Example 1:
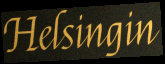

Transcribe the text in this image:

Helsingin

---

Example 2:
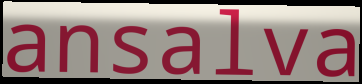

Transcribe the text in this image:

ansalva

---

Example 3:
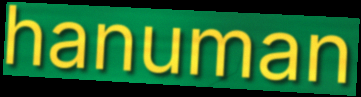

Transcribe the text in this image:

hanuman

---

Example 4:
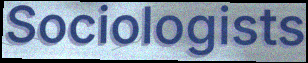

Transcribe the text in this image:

Sociologists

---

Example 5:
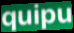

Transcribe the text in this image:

quipu